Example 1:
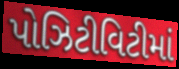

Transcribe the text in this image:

પોઝિટીવિટીમાં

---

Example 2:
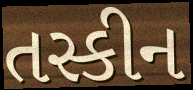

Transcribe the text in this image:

તસ્કીન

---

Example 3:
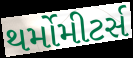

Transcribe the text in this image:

થર્મોમીટર્સ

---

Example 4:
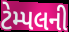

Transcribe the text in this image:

ટેમ્પલની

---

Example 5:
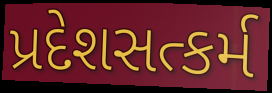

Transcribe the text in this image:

પ્રદેશસત્કર્મ